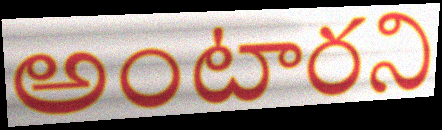
అంటారని